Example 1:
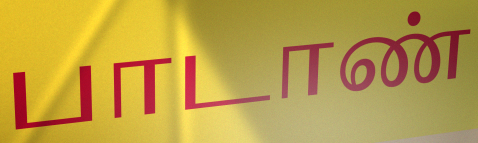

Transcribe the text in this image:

பாடாண்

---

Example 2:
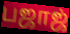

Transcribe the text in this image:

பஜாஜ்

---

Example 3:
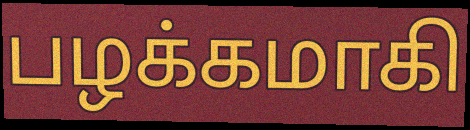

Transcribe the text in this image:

பழக்கமாகி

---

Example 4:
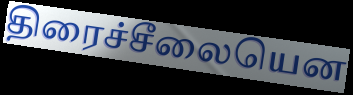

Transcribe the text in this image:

திரைச்சீலையென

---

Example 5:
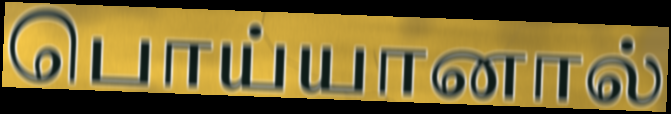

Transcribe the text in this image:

பொய்யானால்